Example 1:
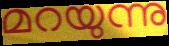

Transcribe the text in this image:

മറയുന്നു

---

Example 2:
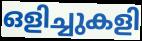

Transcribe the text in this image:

ഒളിച്ചുകളി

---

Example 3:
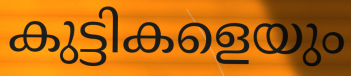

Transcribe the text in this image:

കുട്ടികളെയും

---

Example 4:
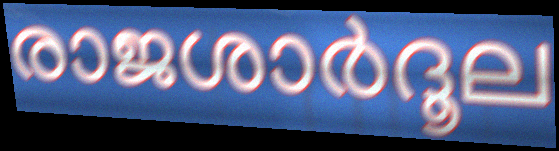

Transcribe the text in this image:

രാജശാർദൂല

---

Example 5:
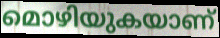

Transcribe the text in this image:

മൊഴിയുകയാണ്